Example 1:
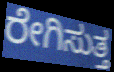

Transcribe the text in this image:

ರೇಗಿಸುತ್ತ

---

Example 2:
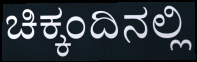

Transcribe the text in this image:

ಚಿಕ್ಕಂದಿನಲ್ಲಿ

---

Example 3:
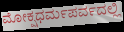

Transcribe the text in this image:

ಮೋಕ್ಷಧರ್ಮಪರ್ವದಲ್ಲಿ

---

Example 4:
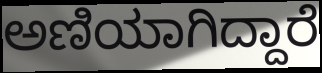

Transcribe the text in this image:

ಅಣಿಯಾಗಿದ್ದಾರೆ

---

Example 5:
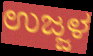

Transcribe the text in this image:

ಉಜ್ಜಳ